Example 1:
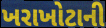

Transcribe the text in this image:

ખરાખોટાની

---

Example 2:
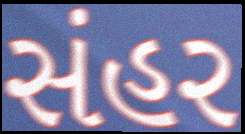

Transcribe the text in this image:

સંહર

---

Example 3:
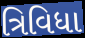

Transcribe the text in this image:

ત્રિવિધા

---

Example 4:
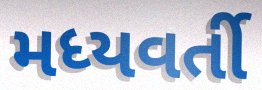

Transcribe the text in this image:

મધ્યવર્તી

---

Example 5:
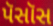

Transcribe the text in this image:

પૅસૉસ